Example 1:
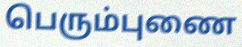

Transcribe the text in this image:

பெரும்புணை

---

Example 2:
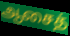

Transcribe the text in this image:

ஆசைத்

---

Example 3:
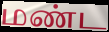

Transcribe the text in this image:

மண்ட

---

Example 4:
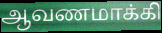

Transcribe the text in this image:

ஆவணமாக்கி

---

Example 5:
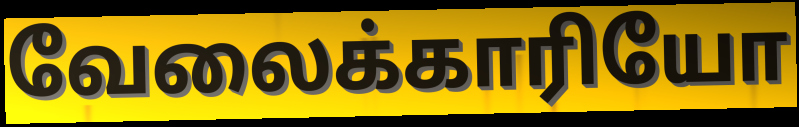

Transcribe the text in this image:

வேலைக்காரியோ